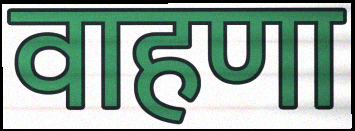
वाहणा